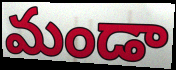
మండా